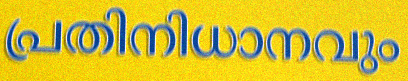
പ്രതിനിധാനവും